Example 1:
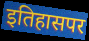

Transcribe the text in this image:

इतिहासपर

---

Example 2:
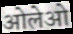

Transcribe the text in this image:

ओलेओ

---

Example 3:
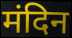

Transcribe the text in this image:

मंदिन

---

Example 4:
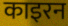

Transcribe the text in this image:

काइरन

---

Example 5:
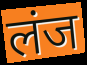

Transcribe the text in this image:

लंज